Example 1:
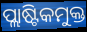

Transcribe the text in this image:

ପ୍ଲାଷ୍ଟିକମୁକ୍ତ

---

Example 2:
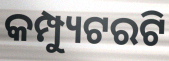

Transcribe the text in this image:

କମ୍ପ୍ୟୁଟରଟି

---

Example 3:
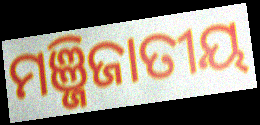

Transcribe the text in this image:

ମଞ୍ଜିଜାତୀୟ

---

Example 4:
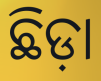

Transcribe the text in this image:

ଛିଡ଼ା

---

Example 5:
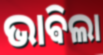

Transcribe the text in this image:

ଭାଵିଲା